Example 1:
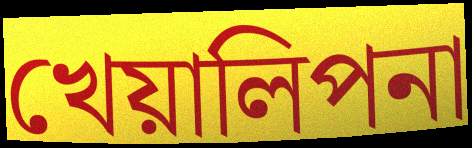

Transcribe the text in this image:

খেয়ালিপনা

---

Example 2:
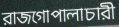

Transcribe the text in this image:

রাজগোপালাচারী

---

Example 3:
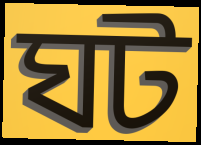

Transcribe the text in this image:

ঘট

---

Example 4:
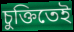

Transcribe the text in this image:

চুক্তিতেই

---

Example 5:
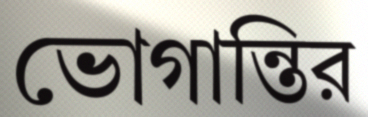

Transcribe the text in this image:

ভোগান্তির